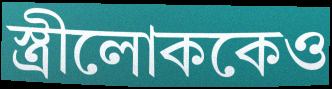
স্ত্রীলোককেও